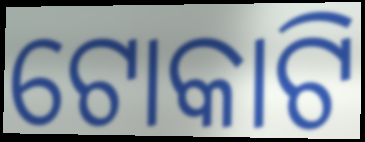
ଟୋକାଟି